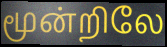
மூன்றிலே